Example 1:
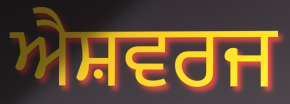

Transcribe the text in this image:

ਐਸ਼ਵਰਜ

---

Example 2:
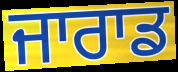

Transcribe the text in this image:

ਜਾਰਾਡ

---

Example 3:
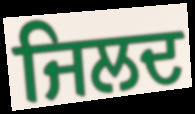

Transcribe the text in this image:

ਜਿਲਦ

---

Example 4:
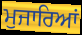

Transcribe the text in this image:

ਮੁਜਾਰਿਆਂ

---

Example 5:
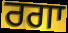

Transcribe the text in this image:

ਰਗਾ